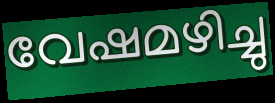
വേഷമഴിച്ചു